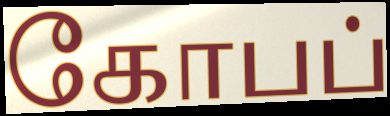
கோபப்